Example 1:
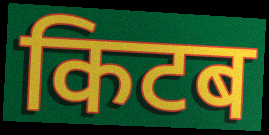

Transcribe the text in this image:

किटब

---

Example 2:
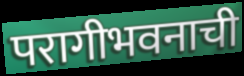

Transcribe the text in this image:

परागीभवनाची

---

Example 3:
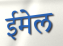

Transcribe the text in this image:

ईमेल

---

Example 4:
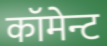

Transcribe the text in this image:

कॉमेन्ट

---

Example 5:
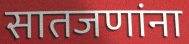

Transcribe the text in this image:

सातजणांना